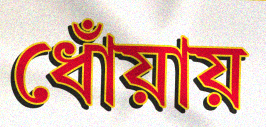
ধোঁয়ায়